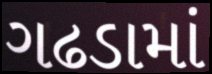
ગઢડામાં